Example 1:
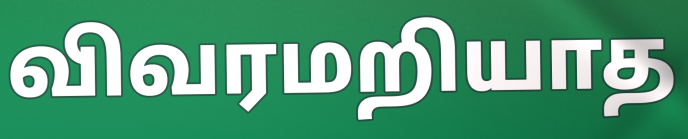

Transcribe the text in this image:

விவரமறியாத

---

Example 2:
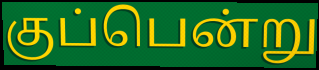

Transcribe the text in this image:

குப்பென்று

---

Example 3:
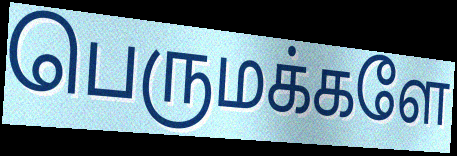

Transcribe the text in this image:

பெருமக்களே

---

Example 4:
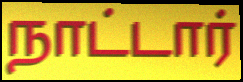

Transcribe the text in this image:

நாட்டார்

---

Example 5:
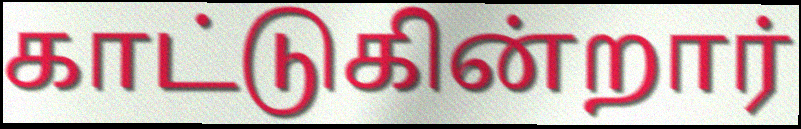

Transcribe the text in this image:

காட்டுகின்றார்